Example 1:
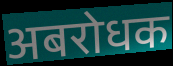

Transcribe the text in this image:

अबरोधक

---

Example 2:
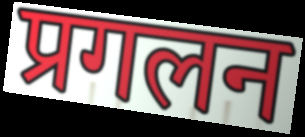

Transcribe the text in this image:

प्रगलन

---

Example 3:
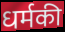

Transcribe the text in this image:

धर्मकी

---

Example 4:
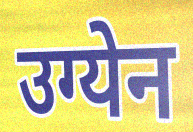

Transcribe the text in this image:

उग्येन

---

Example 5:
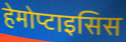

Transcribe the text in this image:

हेमोप्टाइसिस